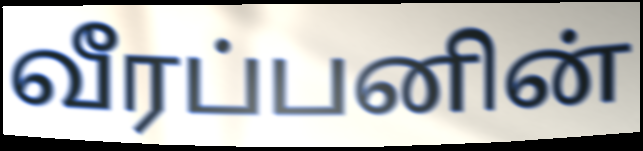
வீரப்பனின்